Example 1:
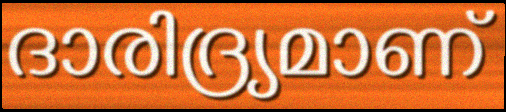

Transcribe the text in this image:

ദാരിദ്ര്യമാണ്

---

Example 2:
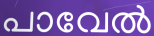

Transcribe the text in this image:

പാവേൽ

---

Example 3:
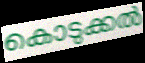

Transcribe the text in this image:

കൊടുക്കൽ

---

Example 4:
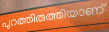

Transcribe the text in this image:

പുറത്തിരുത്തിയാണ്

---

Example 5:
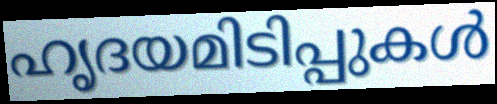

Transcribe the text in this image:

ഹൃദയമിടിപ്പുകൾ